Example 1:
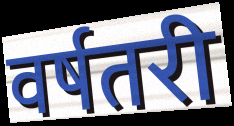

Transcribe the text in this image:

वर्षतरी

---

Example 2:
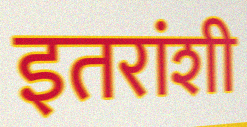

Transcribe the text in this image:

इतरांशी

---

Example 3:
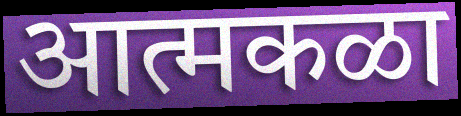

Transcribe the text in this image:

आत्मकळा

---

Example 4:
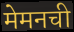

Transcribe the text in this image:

मेमनची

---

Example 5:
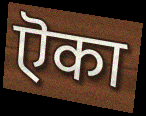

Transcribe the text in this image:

ऎका